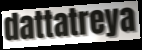
dattatreya